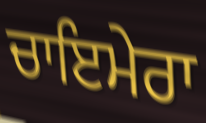
ਚਾਇਮੇਰਾ